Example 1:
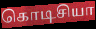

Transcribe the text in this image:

கொடிசியா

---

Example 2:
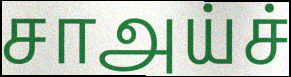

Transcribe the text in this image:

சாஅய்ச்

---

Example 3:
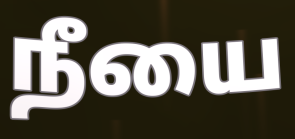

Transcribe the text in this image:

நீயை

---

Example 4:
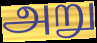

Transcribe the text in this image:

அறு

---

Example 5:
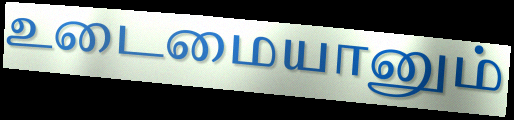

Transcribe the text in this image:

உடைமையானும்